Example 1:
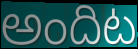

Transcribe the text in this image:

అందిట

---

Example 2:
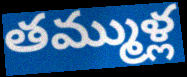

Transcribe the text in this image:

తమ్ముళ్ల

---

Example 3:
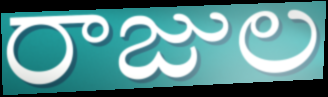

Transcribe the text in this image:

రాజుల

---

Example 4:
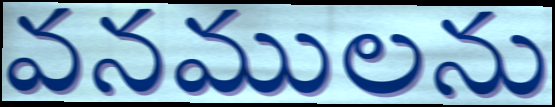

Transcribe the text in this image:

వనములను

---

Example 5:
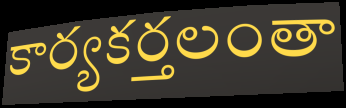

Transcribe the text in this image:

కార్యకర్తలంతా